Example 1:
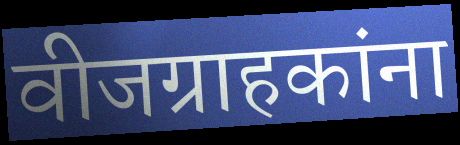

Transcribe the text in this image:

वीजग्राहकांना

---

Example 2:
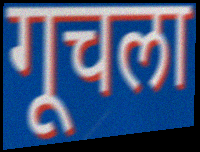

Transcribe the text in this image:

गूचला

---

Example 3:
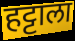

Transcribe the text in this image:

हट्टाला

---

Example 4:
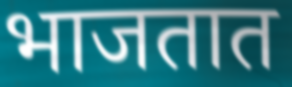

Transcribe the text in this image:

भाजतात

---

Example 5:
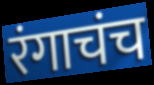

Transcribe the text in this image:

रंगाचंच